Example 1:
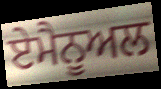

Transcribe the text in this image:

ਏਮੈਨੂਅਲ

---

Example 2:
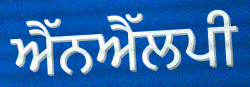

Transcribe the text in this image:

ਐੱਨਐੱਲਪੀ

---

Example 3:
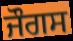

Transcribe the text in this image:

ਜੌਗਸ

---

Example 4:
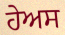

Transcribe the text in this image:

ਹੇਅਸ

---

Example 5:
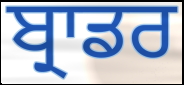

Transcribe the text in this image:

ਬ੍ਰਾਡਰ